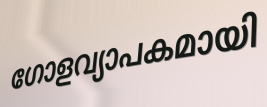
ഗോളവ്യാപകമായി